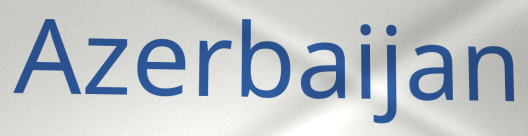
Azerbaijan